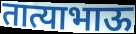
तात्याभाऊ